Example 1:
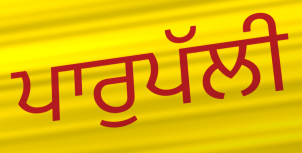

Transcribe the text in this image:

ਪਾਰੁਪੱਲੀ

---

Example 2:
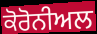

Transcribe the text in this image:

ਕੋਰੋਨੀਅਲ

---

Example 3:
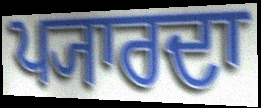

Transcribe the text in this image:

ਪ੍ਯਾਰਦਾ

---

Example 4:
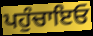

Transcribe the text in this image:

ਪਹੁੰਚਾਇਓ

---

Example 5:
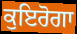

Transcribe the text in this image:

ਕੁਇਰੋਗਾ